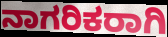
ನಾಗರಿಕರಾಗಿ